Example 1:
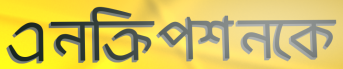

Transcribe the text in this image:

এনক্রিপশনকে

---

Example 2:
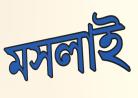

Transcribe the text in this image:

মসলাই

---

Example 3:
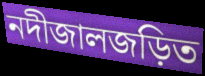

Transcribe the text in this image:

নদীজালজড়িত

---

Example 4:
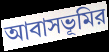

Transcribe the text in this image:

আবাসভূমির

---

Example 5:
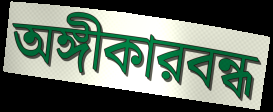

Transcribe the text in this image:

অঙ্গীকারবন্ধ